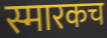
स्मारकच